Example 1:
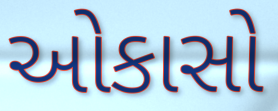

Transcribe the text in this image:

ઓકાસો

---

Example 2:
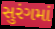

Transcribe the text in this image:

સુરંગમાં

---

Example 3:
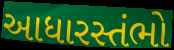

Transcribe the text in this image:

આધારસ્તંભો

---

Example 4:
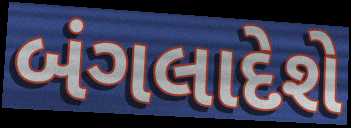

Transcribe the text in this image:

બંગલાદેશે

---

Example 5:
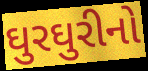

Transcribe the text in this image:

ઘુરઘુરીનો